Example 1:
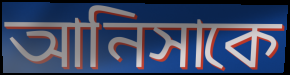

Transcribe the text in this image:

আনিসাকে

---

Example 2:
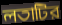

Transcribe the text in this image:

লতাটির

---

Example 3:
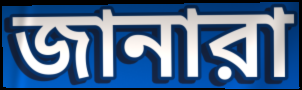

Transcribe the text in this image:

জানারা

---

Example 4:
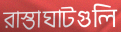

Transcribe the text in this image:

রাস্তাঘাটগুলি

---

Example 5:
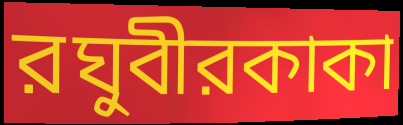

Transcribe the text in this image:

রঘুবীরকাকা